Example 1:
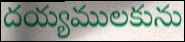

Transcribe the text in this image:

దయ్యములకును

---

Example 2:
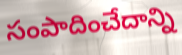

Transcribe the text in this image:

సంపాదించేదాన్ని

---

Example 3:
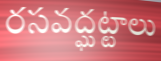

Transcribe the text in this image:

రసవద్ఘట్టాలు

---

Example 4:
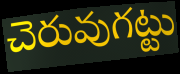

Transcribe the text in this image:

చెరువుగట్టు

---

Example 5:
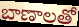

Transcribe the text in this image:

బాణాలతో